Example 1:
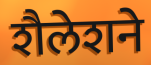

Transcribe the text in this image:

शैलेशने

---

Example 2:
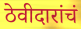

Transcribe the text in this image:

ठेवीदारांचं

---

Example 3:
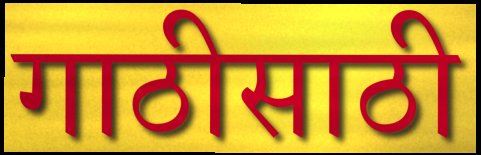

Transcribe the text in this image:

गाठीसाठी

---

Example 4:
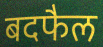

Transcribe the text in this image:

बदफैल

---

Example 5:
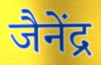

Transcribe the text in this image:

जैनेंद्र